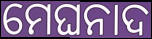
ମେଘନାଦ